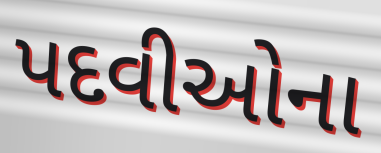
પદવીઓના